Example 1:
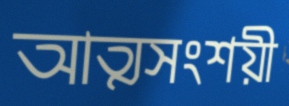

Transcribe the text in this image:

আত্মসংশয়ী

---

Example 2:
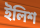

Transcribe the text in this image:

ইলিশ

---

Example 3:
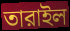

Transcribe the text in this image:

তারাইল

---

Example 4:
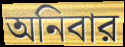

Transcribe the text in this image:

অনিবার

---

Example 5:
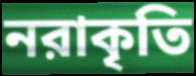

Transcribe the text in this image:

নরাকৃতি